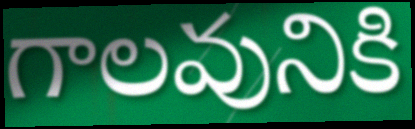
గాలవునికి